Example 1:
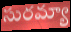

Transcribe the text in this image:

సురమ్యా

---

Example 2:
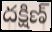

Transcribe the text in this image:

దక్షిణ్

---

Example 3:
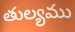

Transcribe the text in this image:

తుల్యము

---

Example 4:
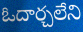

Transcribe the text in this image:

ఓదార్చలేని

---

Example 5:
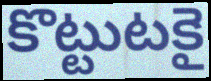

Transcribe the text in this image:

కొట్టుటకై